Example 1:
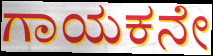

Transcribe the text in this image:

ಗಾಯಕನೇ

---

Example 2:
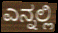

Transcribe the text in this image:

ಎನ್ನಲ್ಲಿ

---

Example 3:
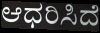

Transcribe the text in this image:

ಆಧರಿಸಿದೆ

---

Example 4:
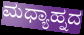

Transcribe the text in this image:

ಮಧ್ಯಾಹ್ನದ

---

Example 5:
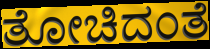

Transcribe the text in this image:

ತೋಚಿದಂತೆ